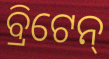
ବ୍ରିଟେନ୍